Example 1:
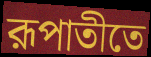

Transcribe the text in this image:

রূপাতীতে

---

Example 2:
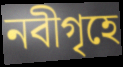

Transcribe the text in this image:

নবীগৃহে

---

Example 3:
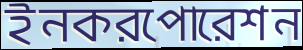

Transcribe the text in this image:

ইনকরপোরেশন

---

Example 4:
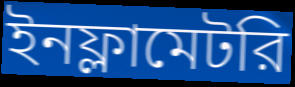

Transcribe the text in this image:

ইনফ্লামেটরি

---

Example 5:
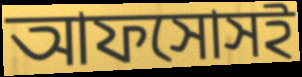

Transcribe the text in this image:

আফসোসই